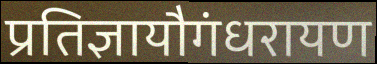
प्रतिज्ञायौगंधरायण